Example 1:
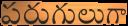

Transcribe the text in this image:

పరుగులుగా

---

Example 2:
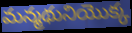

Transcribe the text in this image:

మన్మథునియొక్క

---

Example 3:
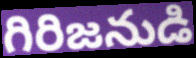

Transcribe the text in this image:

గిరిజనుడి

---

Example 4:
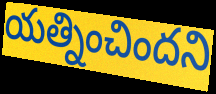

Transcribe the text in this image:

యత్నించిందని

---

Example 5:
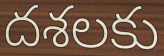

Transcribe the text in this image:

దశలకు